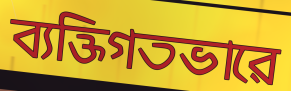
ব্যক্তিগতভাৱে